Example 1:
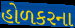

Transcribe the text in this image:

હોળકરના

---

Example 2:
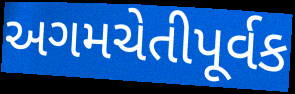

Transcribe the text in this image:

અગમચેતીપૂર્વક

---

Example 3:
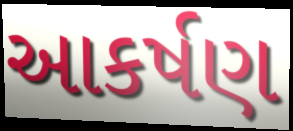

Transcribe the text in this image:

આકર્ષણ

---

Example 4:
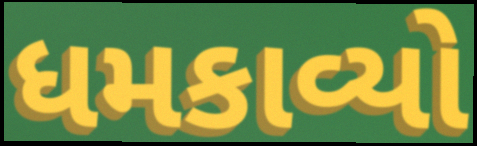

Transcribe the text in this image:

ધમકાવ્યો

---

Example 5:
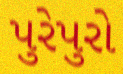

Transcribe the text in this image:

પુરેપુરો